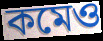
কমেও